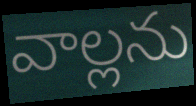
వాల్లను